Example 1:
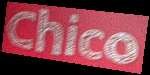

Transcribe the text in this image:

Chico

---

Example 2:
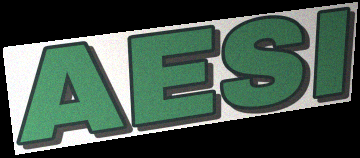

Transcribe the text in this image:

AESI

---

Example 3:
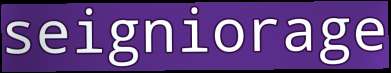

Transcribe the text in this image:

seigniorage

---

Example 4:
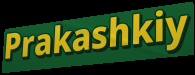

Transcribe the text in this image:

Prakashkiy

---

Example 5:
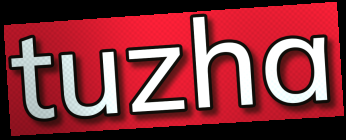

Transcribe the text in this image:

tuzha